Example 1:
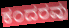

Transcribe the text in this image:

ಕಂದರವು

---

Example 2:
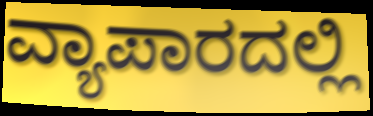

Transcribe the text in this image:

ವ್ಯಾಪಾರದಲ್ಲಿ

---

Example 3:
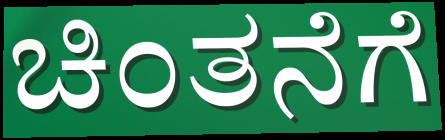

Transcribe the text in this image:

ಚಿಂತನೆಗೆ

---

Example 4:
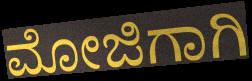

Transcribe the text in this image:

ಮೋಜಿಗಾಗಿ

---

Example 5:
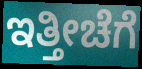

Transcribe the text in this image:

ಇತ್ತೀಚೆಗೆ